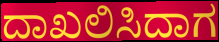
ದಾಖಲಿಸಿದಾಗ